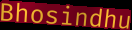
Bhosindhu